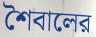
শৈবালের